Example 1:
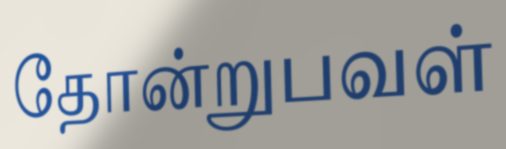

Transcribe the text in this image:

தோன்றுபவள்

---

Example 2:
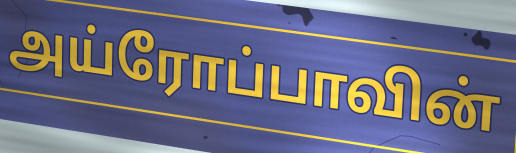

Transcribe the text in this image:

அய்ரோப்பாவின்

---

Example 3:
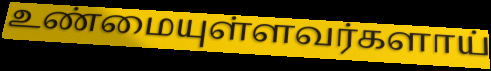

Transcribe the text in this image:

உண்மையுள்ளவர்களாய்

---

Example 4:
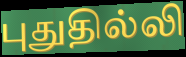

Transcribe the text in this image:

புதுதில்லி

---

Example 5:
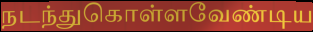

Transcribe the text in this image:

நடந்துகொள்ளவேண்டிய